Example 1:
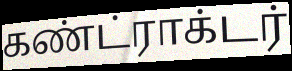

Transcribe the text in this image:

கண்ட்ராக்டர்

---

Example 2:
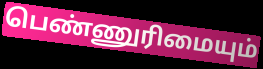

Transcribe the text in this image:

பெண்ணுரிமையும்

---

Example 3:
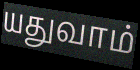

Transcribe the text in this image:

யதுவாம்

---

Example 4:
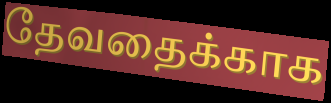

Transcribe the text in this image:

தேவதைக்காக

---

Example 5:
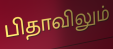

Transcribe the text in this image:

பிதாவிலும்